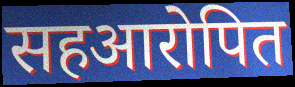
सहआरोपित